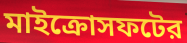
মাইক্রোসফটের